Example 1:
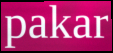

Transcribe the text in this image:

pakar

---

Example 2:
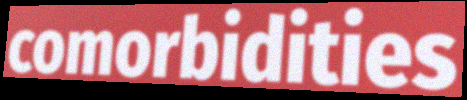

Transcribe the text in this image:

comorbidities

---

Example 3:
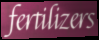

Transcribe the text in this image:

fertilizers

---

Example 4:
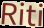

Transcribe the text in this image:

Riti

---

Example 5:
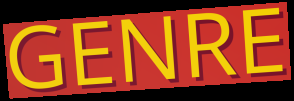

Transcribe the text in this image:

GENRE